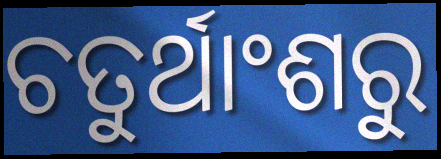
ଚତୁର୍ଥାଂଶରୁ